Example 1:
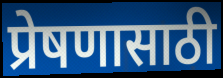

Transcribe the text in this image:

प्रेषणासाठी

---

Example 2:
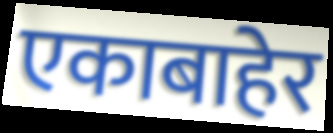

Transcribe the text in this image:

एकाबाहेर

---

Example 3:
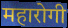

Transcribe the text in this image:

महारोगी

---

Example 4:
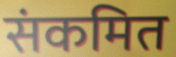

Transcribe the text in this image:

संकमित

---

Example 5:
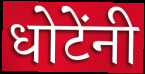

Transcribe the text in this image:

धोटेंनी